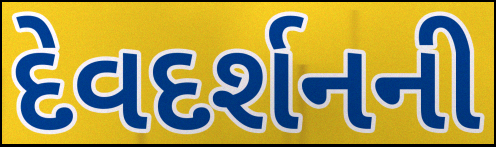
દેવદર્શનની